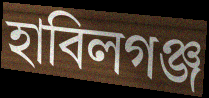
হাবিলগঞ্জ